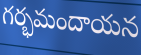
గర్భమందాయన